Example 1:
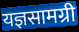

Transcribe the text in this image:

यज्ञसामग्री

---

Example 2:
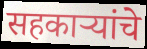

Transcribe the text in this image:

सहकार्‍यांचे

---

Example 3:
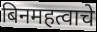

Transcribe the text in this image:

बिनमहत्वाचे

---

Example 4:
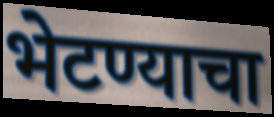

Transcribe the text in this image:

भेटण्याचा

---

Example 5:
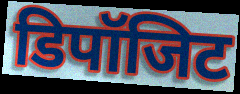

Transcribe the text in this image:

डिपॉजिट